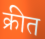
क्रीत